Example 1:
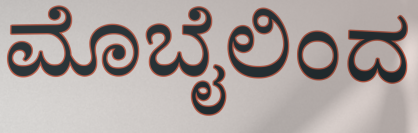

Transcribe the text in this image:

ಮೊಬೈಲಿಂದ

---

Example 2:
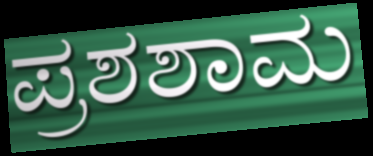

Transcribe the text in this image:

ಪ್ರಶಶಾಮ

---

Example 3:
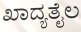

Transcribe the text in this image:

ಖಾದ್ಯತೈಲ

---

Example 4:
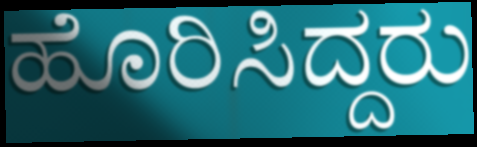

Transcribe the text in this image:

ಹೊರಿಸಿದ್ದರು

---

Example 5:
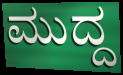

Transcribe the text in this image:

ಮುದ್ದ